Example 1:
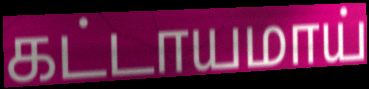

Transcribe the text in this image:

கட்டாயமாய்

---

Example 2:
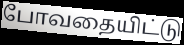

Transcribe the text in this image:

போவதையிட்டு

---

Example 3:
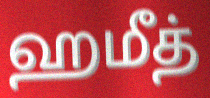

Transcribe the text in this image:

ஹமீத்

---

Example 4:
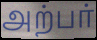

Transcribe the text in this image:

அற்பர்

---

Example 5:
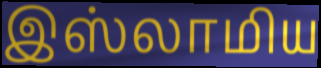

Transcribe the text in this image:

இஸ்லாமிய